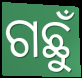
ଗଛୁଁ